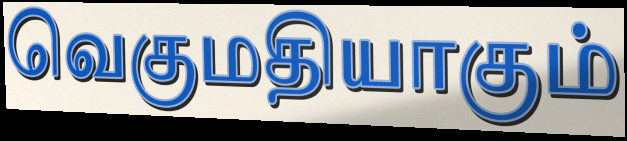
வெகுமதியாகும்